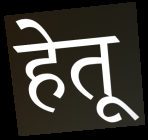
हेतू